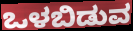
ಒಳಬಿಡುವ